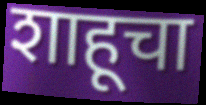
शाहूचा